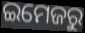
ଇମେଜରୁ